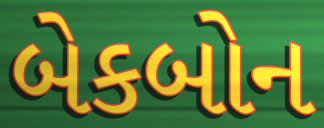
બેકબોન